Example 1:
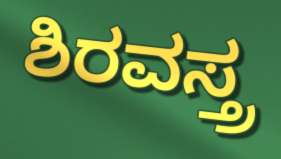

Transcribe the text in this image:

ಶಿರವಸ್ತ್ರ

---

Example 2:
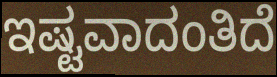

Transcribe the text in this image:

ಇಷ್ಟವಾದಂತಿದೆ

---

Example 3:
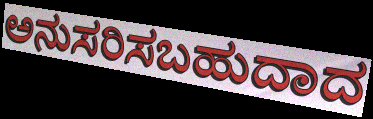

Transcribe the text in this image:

ಅನುಸರಿಸಬಹುದಾದ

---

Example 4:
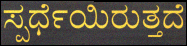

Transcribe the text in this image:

ಸ್ಪರ್ಧೆಯಿರುತ್ತದೆ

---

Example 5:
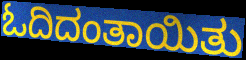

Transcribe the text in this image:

ಓದಿದಂತಾಯಿತು